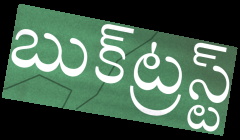
బుక్‌ట్రస్ట్